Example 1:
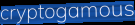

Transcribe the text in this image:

cryptogamous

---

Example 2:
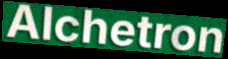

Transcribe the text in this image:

Alchetron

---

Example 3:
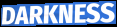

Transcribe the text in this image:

DARKNESS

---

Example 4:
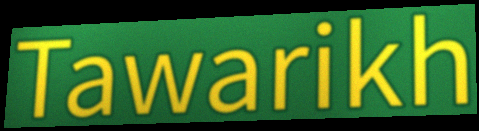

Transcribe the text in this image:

Tawarikh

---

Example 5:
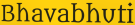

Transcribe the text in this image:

Bhavabhuti